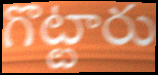
గొట్టారు